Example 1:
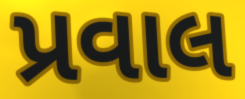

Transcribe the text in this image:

પ્રવાલ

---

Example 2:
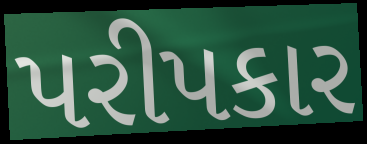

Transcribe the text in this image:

પરીપકાર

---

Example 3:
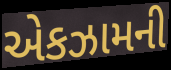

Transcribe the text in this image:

એકઝામની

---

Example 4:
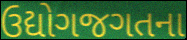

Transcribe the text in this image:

ઉદ્યોગજગતના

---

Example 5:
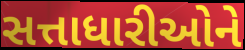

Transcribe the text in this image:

સત્તાધારીઓને